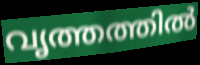
വൃത്തത്തിൽ